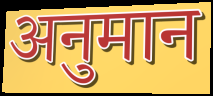
अनुमान